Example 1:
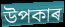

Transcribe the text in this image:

উপকাৰ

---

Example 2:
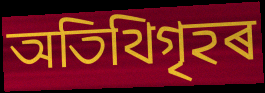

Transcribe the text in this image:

অতিথিগৃহৰ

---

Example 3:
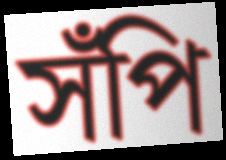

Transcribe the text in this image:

সঁপি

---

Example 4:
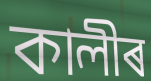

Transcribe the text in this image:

কালীৰ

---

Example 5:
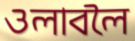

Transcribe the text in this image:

ওলাবলৈ